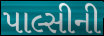
પાલ્સીની